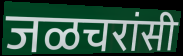
जळचरांसी